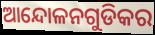
ଆନ୍ଦୋଳନଗୁଡିକର